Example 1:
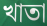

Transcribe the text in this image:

খাতা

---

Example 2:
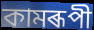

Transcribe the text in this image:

কামৰূপী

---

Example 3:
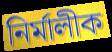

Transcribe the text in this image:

নিৰ্মালীক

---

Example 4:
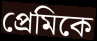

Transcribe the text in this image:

প্ৰেমিকে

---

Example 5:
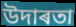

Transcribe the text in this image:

উদাৰতা